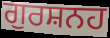
ਗੁਰਸ਼ਨਹ